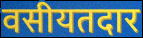
वसीयतदार